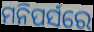
ମନିପର୍ସରେ